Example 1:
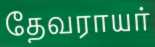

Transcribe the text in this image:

தேவராயர்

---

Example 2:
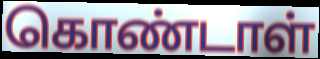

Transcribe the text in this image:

கொண்டாள்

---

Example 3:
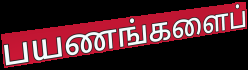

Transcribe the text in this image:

பயணங்களைப்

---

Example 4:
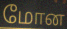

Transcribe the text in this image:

மோன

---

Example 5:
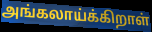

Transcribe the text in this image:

அங்கலாய்க்கிறாள்